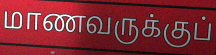
மாணவருக்குப்